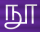
நூ